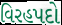
વિરહપદો